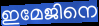
ഇമേജിനെ